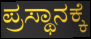
ಪ್ರಸ್ಥಾನಕ್ಕೆ